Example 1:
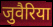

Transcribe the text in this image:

जुवैरिया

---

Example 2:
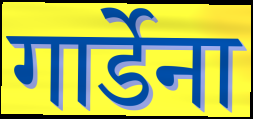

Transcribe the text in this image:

गार्डेना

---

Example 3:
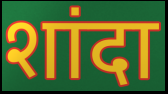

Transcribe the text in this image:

शांदा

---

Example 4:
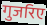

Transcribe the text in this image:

गुजरिए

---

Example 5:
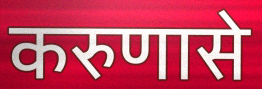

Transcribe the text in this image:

करुणासे